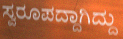
ಸ್ವರೂಪದ್ದಾಗಿದ್ದು